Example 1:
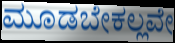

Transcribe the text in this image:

ಮೂಡಬೇಕಲ್ಲವೇ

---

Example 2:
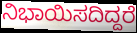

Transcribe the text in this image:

ನಿಭಾಯಿಸದಿದ್ದರೆ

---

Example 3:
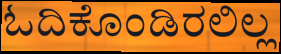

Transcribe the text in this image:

ಓದಿಕೊಂಡಿರಲಿಲ್ಲ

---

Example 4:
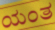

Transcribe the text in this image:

ಯಂತ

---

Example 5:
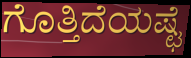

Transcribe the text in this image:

ಗೊತ್ತಿದೆಯಷ್ಟೆ